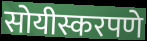
सोयीस्करपणे